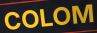
COLOM